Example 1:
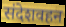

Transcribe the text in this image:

संदेशवहन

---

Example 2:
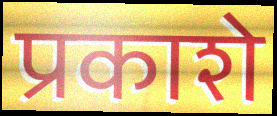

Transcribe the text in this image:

प्रकाशे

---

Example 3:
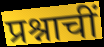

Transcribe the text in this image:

प्रश्नाचीं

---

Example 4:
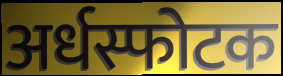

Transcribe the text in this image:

अर्धस्फोटक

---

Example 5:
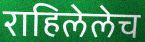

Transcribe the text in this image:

राहिलेलेच